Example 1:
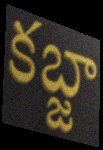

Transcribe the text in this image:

కబ్జా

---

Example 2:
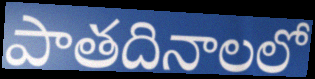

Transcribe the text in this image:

పాతదినాలలో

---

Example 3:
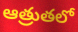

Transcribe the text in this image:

ఆత్రుతలో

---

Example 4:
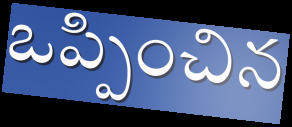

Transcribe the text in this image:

ఒప్పించిన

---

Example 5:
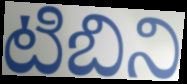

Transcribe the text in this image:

టిబిని